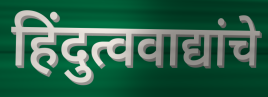
हिंदुत्ववाद्यांचे